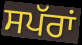
ਸਪੱਰਾਂ